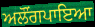
ਅਲੌਂਗਪਾਇਆ